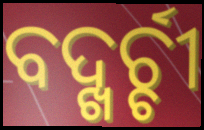
ବଦ୍ଖର୍ଚ୍ଚୀ